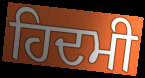
ਹਿਦਮੀ